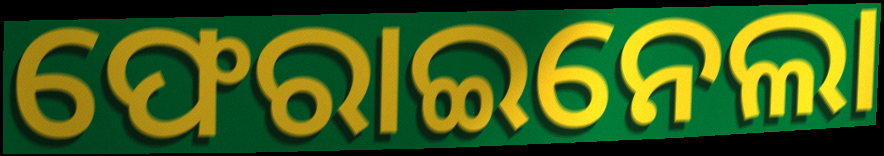
ଫେରାଇନେଲା